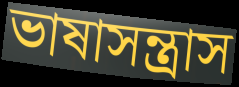
ভাষাসন্ত্রাস